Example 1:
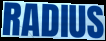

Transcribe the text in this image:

RADIUS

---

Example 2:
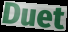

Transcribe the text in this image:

Duet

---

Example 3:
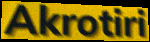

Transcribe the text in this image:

Akrotiri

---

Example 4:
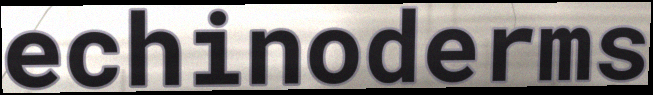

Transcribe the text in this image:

echinoderms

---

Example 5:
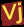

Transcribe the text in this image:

Vj